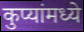
कुप्यांमध्ये